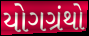
યોગગ્રંથો